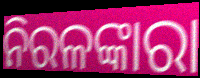
ନିରଳଙ୍କାରା